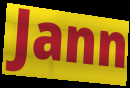
Jann